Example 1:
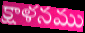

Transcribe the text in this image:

క్షాళనము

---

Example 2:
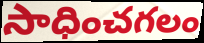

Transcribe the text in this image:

సాధించగలం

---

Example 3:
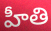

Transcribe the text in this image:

హీతి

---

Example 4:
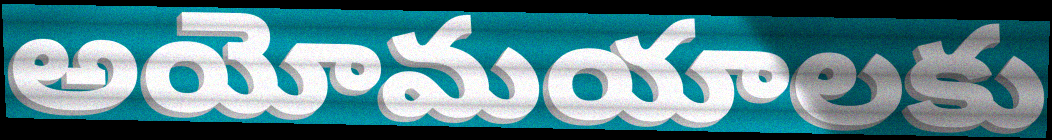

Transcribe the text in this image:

అయోమయాలకు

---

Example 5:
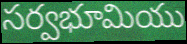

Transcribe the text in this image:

సర్వభూమియు